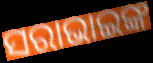
ସରାଭାଇଙ୍କ